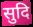
सुदि